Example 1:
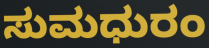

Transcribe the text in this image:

ಸುಮಧುರಂ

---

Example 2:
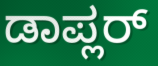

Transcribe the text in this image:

ಡಾಪ್ಲರ್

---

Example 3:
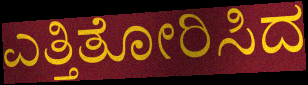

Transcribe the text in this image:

ಎತ್ತಿತೋರಿಸಿದ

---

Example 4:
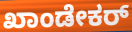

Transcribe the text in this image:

ಖಾಂಡೇಕರ್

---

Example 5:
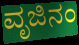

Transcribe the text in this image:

ವೃಜಿನಂ